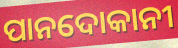
ପାନଦୋକାନୀ